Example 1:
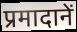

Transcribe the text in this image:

प्रमादानें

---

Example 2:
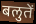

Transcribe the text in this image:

बलुतें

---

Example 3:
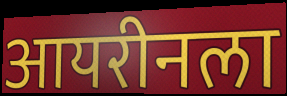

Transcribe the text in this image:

आयरीनला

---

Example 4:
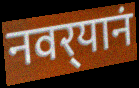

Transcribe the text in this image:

नवर्‍यानं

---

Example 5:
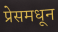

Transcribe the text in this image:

प्रेसमधून